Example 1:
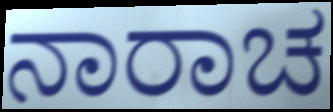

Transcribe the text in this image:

ನಾರಾಚ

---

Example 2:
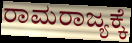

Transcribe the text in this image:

ರಾಮರಾಜ್ಯಕ್ಕೆ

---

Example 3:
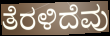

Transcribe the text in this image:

ತೆರಳಿದೆವು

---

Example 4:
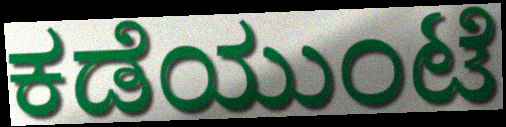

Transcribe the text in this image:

ಕಡೆಯುಂಟೆ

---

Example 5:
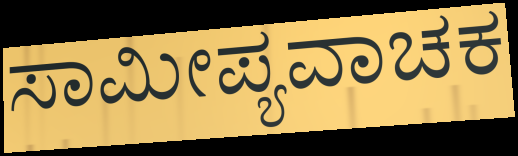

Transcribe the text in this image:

ಸಾಮೀಪ್ಯವಾಚಕ